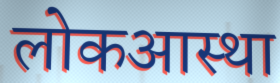
लोकआस्था